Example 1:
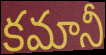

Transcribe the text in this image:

కమానీ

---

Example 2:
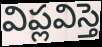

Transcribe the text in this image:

విప్లవిస్తె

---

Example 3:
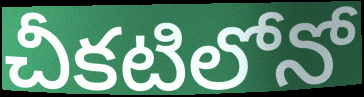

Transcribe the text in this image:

చీకటిలోనో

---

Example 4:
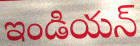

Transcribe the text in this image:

ఇండియన్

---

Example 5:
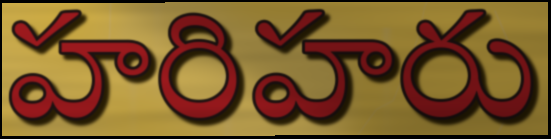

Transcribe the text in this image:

హరిహరు